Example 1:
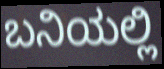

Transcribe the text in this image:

ಬನಿಯಲ್ಲಿ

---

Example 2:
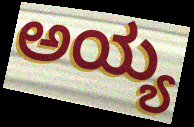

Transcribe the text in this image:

ಅಯ್ಯ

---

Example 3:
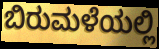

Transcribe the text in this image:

ಬಿರುಮಳೆಯಲ್ಲಿ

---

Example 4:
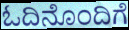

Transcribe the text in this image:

ಓದಿನೊಂದಿಗೆ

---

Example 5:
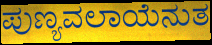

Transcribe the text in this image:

ಪುಣ್ಯವಲಾಯೆನುತ